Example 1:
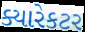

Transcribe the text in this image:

ક્યારેકટર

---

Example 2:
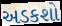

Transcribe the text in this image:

અડકશો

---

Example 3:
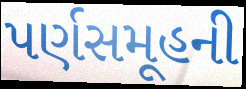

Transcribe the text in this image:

પર્ણસમૂહની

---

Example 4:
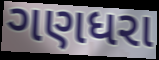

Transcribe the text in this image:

ગણધરા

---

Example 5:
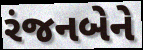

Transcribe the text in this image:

રંજનબેને